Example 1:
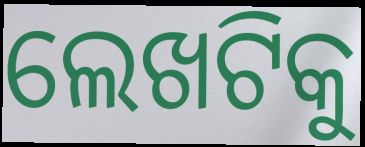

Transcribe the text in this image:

ଲେଖଟିକୁ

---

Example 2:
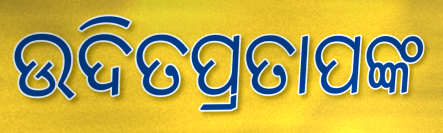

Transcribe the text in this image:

ଉଦିତପ୍ରତାପଙ୍କ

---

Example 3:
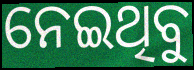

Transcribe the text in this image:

ନେଇଥିବୁ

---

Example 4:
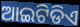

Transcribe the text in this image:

ଆଇଟିଡିଏ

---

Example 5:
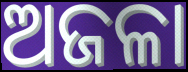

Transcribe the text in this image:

ଅଜଳା